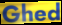
Ghed